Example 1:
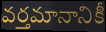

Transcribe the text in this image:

వర్తమానానికీ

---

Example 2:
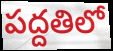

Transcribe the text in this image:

పద్దతిలో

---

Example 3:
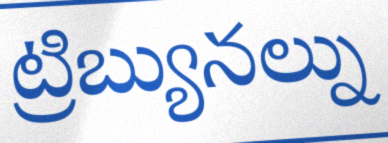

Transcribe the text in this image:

ట్రిబ్యునల్ను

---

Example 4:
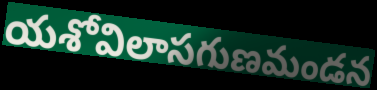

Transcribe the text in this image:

యశోవిలాసగుణమండన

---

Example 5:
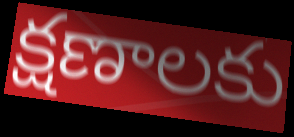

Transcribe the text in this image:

క్షణాలకు